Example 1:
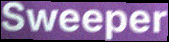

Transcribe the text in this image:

Sweeper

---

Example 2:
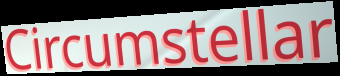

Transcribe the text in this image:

Circumstellar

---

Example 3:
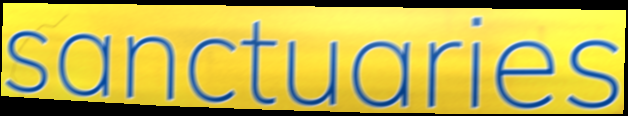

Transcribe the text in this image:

sanctuaries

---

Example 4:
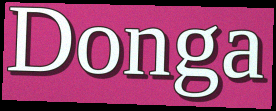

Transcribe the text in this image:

Donga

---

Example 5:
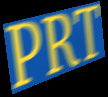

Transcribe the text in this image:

PRT